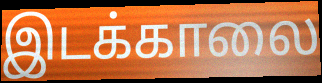
இடக்காலை